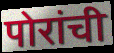
पोरांची